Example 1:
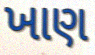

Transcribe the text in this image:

ખાણ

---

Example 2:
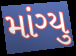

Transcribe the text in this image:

માંગ્યુ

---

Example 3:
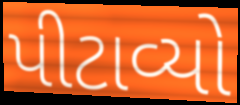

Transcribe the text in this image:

પીટાવ્યો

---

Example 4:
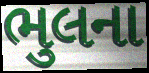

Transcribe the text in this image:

ભુલના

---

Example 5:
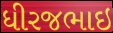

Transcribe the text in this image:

ધીરજભાઇ